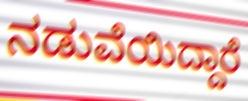
ನಡುವೆಯಿದ್ದಾರೆ